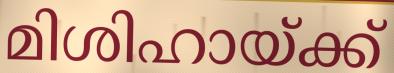
മിശിഹായ്ക്ക്